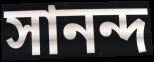
সানন্দ